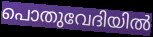
പൊതുവേദിയിൽ